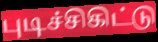
புடிச்சிகிட்டு